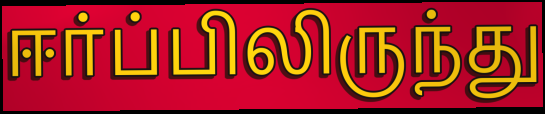
ஈர்ப்பிலிருந்து